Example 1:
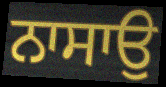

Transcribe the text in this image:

ਨਾਸਾਉ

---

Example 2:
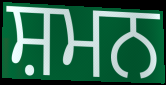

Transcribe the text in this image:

ਸ਼ਮਨ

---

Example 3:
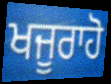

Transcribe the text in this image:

ਖਜੂਰਾਹੋ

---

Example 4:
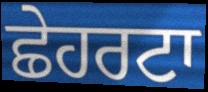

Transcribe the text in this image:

ਛੇਹਰਟਾ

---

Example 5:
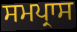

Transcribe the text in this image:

ਸਮਪ੍ਰਾਸ